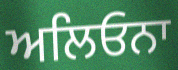
ਅਲਿਓਨਾ